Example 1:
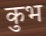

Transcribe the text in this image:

कुभ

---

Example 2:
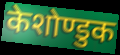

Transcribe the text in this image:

केशोण्डुक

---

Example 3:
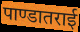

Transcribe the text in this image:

पाण्डातराई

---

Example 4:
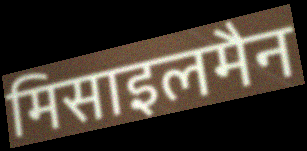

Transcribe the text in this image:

मिसाइलमैन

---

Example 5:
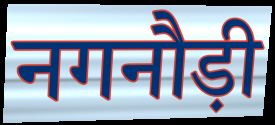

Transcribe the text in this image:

नगनौड़ी